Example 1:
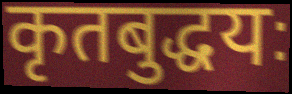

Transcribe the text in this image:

कृतबुद्धयः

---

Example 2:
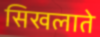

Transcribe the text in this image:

सिखलाते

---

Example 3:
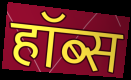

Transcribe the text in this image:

हॉब्स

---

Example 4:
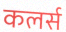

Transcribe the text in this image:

कलर्स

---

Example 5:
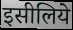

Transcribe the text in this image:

इसीलिये